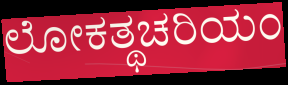
ಲೋಕತ್ಥಚರಿಯಂ